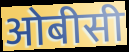
ओबीसी